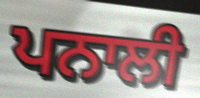
ਪਨਾਲੀ